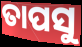
ତାପସୁ